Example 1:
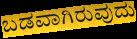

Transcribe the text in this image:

ಬಡವಾಗಿರುವುದು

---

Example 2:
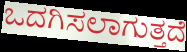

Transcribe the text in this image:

ಒದಗಿಸಲಾಗುತ್ತದೆ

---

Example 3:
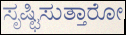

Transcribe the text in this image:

ಸೃಷ್ಟಿಸುತ್ತಾರೋ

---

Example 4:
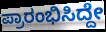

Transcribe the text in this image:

ಪ್ರಾರಂಭಿಸಿದ್ದೇ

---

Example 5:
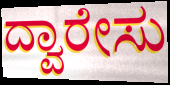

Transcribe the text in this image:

ದ್ವಾರೇಸು